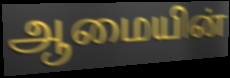
ஆமையின்